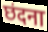
छंदना